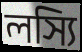
লস্যি